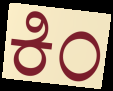
ಕಿಂ